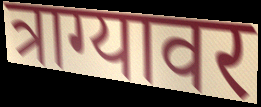
त्राग्यावर